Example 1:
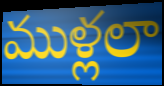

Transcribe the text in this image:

ముళ్లలా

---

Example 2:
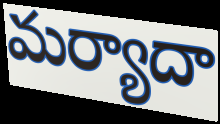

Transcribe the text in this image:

మర్యాదా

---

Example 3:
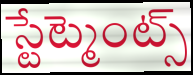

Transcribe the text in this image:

స్టేట్మెంట్స్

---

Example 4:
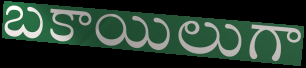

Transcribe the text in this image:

బకాయిలుగా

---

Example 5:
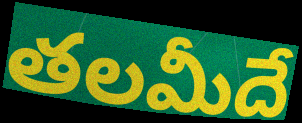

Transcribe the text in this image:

తలమీదే